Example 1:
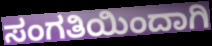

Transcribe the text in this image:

ಸಂಗತಿಯಿಂದಾಗಿ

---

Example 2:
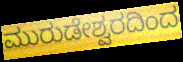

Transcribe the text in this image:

ಮುರುಡೇಶ್ವರದಿಂದ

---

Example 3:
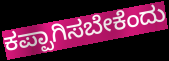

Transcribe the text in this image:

ಕಪ್ಪಾಗಿಸಬೇಕೆಂದು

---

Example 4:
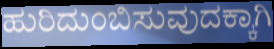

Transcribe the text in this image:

ಹುರಿದುಂಬಿಸುವುದಕ್ಕಾಗಿ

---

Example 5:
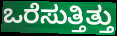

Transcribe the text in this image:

ಒರೆಸುತ್ತಿತ್ತು